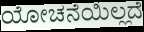
ಯೋಚನೆಯಿಲ್ಲದೆ